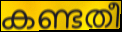
കണ്ടതീ